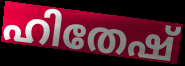
ഹിതേഷ്